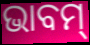
ଭାବମ୍